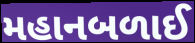
મહાનબળાઈ